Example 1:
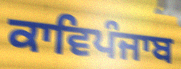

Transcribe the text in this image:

ਕਾਵਿਪੰਜਾਬ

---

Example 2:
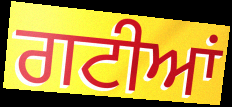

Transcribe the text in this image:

ਗਟੀਆਂ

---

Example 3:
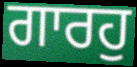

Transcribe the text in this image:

ਗਾਰਹੁ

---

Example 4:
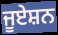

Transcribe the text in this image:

ਜੂਏਸ਼ਨ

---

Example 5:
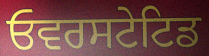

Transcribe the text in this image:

ਓਵਰਸਟੇਟਿਡ